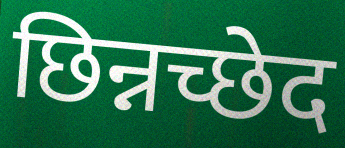
छिन्नच्छेद